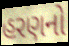
હરણનો